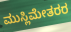
ಮುಸ್ಲಿಮೇತರರ